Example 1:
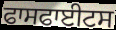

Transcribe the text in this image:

ਫਾਸਫਾਈਟਸ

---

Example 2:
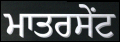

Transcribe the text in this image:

ਮਾਤਰਸੇਂਟ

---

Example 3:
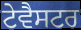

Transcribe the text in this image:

ਟੇਵੈਸਟਰ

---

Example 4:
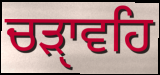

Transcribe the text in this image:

ਚੜੑਾਵਹਿ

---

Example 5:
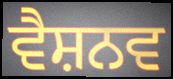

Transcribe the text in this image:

ਵੈਸ਼ਨਵ